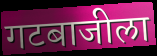
गटबाजीला